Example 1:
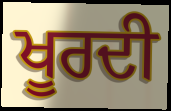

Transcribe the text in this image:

ਖੂਰਦੀ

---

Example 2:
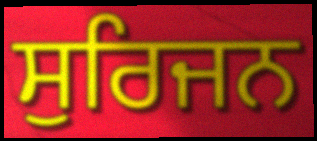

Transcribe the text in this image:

ਸੁਰਿਜਨ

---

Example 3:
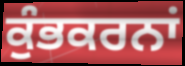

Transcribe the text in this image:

ਕੁੰਭਕਰਨਾਂ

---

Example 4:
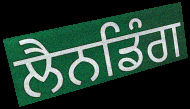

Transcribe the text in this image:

ਲੈਨਡਿੰਗ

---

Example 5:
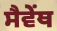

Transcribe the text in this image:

ਸੈਵੇਂਥ